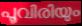
പൂവിരിയും